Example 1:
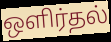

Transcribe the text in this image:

ஒளிர்தல்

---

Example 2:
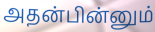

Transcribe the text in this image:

அதன்பின்னும்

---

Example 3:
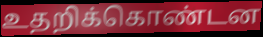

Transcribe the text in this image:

உதறிக்கொண்டன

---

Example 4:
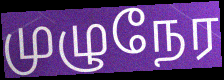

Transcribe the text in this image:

முழுநேர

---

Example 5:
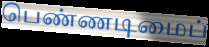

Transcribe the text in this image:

பெண்ணடிமைப்